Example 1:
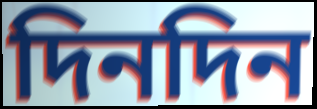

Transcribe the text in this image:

দিনদিন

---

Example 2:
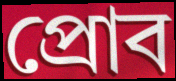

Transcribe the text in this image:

প্রোব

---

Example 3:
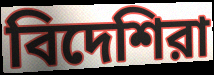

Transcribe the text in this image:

বিদেশিরা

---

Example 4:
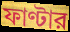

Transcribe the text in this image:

ফাণ্টার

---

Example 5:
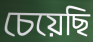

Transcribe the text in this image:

চেয়েছি